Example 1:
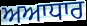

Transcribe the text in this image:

ਅਆਧਾਰ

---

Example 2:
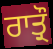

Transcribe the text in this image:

ਰਾਤ੍ਰੌ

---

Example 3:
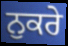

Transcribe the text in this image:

ਨੁਕਰੇ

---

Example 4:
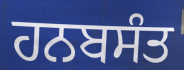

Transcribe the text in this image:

ਹਨਬਸੰਤ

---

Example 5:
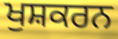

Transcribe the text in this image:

ਖੁਸ਼ਕਰਨ